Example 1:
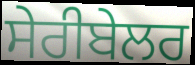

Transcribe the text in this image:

ਸੇਰੀਬੇਲਰ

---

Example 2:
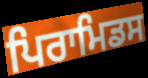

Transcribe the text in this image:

ਪਿਰਾਮਿਡਸ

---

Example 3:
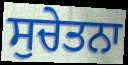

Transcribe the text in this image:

ਸੁਚੇਤਨਾ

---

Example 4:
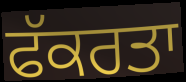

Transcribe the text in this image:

ਫੱਕਰਤਾ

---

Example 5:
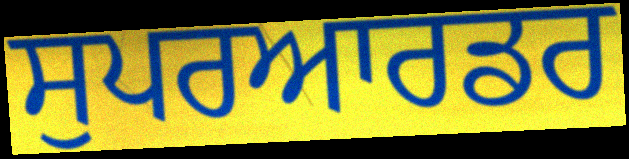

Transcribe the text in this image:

ਸੁਪਰਆਰਡਰ